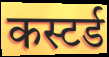
कस्टर्ड